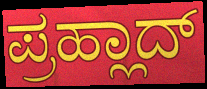
ಪ್ರಹ್ಲಾದ್